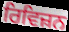
ਰਿਵਿਜ਼ਨ